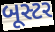
બૂસ્ટર